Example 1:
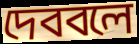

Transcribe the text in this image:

দেববলে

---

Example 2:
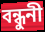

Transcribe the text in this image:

বন্ধুনী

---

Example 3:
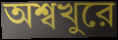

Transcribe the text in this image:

অশ্বখুরে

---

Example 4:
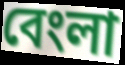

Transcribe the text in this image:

বেংলা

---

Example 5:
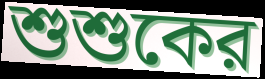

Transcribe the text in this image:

শুশুকের